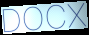
DOCX